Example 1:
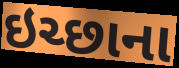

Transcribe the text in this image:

ઇચ્છાના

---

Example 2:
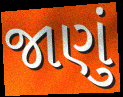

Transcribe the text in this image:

જાણું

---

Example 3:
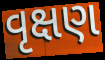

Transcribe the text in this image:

વૃક્ષણ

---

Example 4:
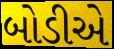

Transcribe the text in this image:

બોડીએ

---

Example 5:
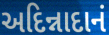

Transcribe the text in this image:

અદિન્નાદાનં